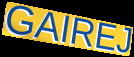
GAIREJ